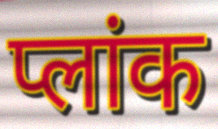
प्लांक